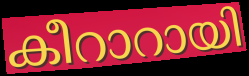
കീറാറായി